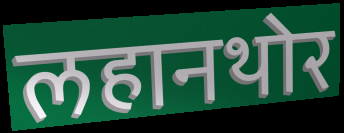
लहानथोर